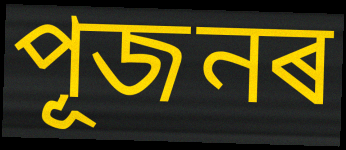
পূজনৰ